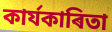
কাৰ্যকাৰিতা